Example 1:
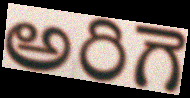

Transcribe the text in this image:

అరిగె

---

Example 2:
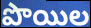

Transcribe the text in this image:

పొయిల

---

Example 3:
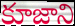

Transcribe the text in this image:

కూజాని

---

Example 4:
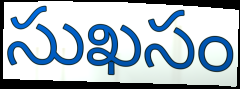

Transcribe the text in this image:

సుఖసం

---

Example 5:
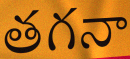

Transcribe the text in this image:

తగనా